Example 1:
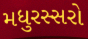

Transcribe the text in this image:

મધુરસ્સરો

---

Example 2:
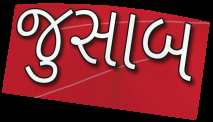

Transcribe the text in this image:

જુસાબ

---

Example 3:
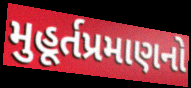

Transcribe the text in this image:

મુહૂર્તપ્રમાણનો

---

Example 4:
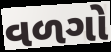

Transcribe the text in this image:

વળગો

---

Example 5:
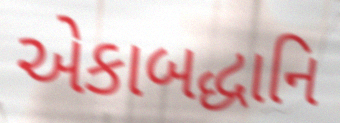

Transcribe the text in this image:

એકાબદ્ધાનિ